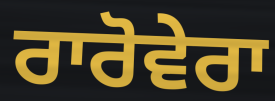
ਰਾਰੋਵੇਰਾ